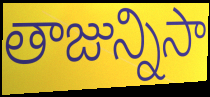
తాజున్నిసా